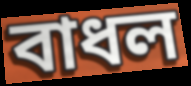
বাধল